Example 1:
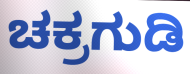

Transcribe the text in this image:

ಚಕ್ರಗುಡಿ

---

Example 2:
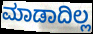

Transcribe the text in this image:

ಮಾಡಾದಿಲ್ಲ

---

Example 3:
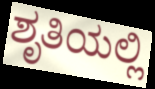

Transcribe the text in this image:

ಶೃತಿಯಲ್ಲಿ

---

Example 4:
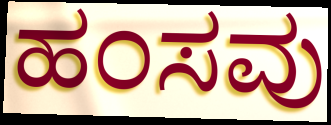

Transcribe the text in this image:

ಹಂಸವು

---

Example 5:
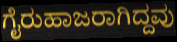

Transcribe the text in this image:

ಗೈರುಹಾಜರಾಗಿದ್ದವು